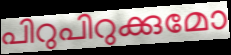
പിറുപിറുക്കുമോ